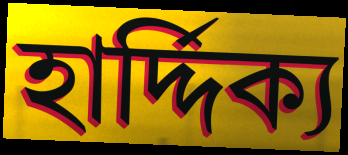
হার্দ্দিক্য